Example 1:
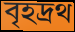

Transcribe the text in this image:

বৃহদ্রথ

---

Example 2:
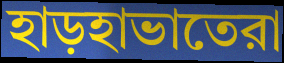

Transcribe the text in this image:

হাড়হাভাতেরা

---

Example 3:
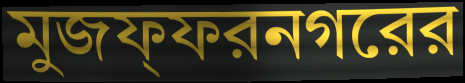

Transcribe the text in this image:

মুজফ্ফরনগরের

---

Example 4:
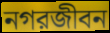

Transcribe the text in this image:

নগরজীবন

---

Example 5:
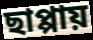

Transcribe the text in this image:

ছাপ্পায়